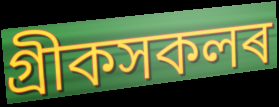
গ্ৰীকসকলৰ